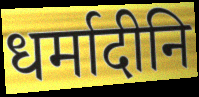
धर्मादीनि